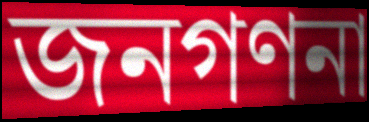
জনগণনা